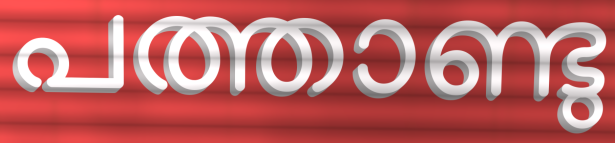
പത്താണ്ടു